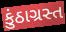
કુંઠાગ્રસ્ત